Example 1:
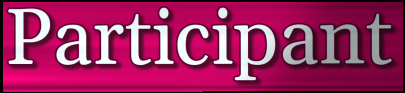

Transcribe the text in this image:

Participant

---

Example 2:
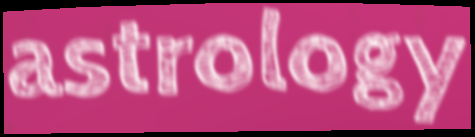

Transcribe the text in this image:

astrology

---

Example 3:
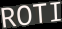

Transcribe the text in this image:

ROTI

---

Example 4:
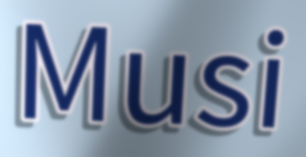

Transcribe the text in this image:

Musi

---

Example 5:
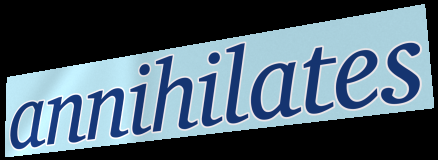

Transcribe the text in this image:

annihilates